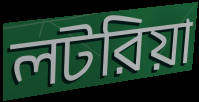
লটরিয়া